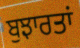
ਬੁਝਾਰਤਾਂ